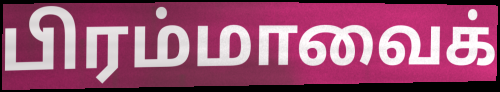
பிரம்மாவைக்